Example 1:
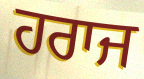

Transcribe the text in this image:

ਹਰਾਜ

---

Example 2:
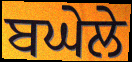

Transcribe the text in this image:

ਬਘੇਲੇ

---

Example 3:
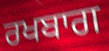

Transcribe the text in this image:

ਰਖਬਾਗ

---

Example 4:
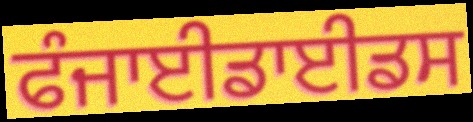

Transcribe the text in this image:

ਫੰਜਾਈਡਾਈਡਸ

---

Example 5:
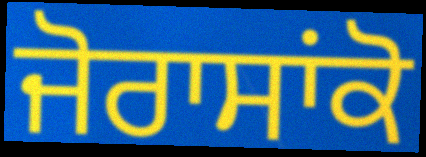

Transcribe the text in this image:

ਜੋਰਾਸਾਂਕੋ